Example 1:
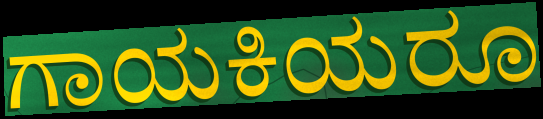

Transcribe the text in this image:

ಗಾಯಕಿಯರೂ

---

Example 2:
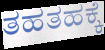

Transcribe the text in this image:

ತಹತಹಕ್ಕೆ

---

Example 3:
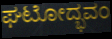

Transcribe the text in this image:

ಘಟೋದ್ಭವಂ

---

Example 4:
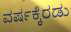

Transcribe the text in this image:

ವರ್ಷಕ್ಕೆರಡು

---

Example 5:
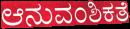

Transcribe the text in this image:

ಆನುವಂಶಿಕತೆ